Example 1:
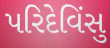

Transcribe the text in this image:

પરિદેવિંસુ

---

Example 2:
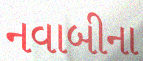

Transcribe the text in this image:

નવાબીના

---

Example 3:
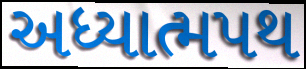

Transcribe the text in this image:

અધ્યાત્મપથ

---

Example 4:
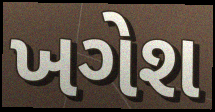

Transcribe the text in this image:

ખગેશ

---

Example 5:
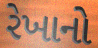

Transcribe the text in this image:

રેખાનો